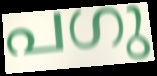
പഗു